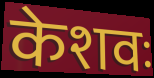
केशवः